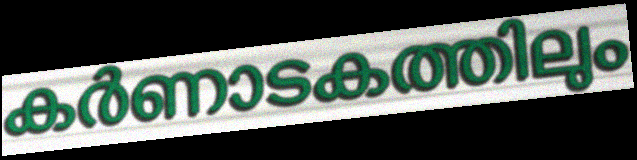
കർണാടകത്തിലും